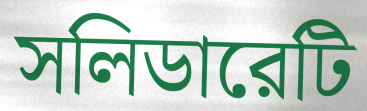
সলিডারেটি